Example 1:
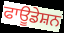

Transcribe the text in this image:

ਫਾਊਡੇਸ਼ਨ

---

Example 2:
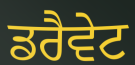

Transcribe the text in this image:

ਡਰੈਵੇਟ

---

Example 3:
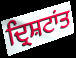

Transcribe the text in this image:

ਦ੍ਰਿਸ਼ਟਾਂਤ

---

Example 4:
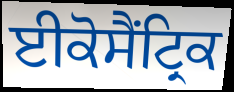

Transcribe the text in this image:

ਈਕੋਸੈਂਟ੍ਰਿਕ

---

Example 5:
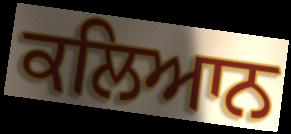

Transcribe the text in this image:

ਕਲਿਆਨ